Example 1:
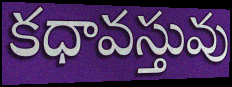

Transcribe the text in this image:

కధావస్తువు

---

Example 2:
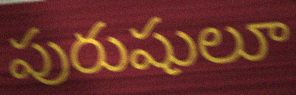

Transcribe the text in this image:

పురుషులూ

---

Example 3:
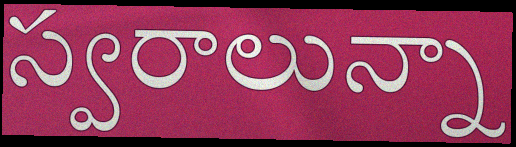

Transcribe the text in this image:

స్వరాలున్నా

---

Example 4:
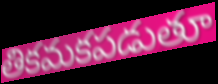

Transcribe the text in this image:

తికమకపడుతూ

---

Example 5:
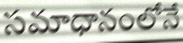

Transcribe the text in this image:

సమాధానంలోనే